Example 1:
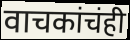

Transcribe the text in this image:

वाचकांचंही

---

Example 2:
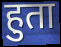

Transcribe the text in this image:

हुता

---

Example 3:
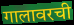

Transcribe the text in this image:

गालावरची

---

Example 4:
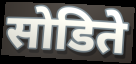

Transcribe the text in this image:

सोडिते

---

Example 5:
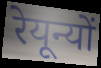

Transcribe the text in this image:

रेयून्यों